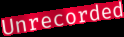
Unrecorded